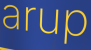
arup